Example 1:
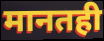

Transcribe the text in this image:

मानतही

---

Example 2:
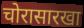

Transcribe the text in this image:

चोरासारखा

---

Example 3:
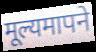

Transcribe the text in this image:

मूल्यमापने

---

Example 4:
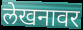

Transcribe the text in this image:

लेखनावर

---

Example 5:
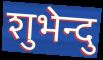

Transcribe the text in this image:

शुभेन्दु